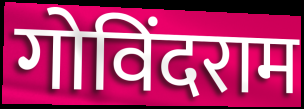
गोविंदराम